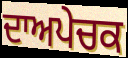
ਦਾਅਪੇਚਕ